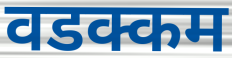
वडक्कम